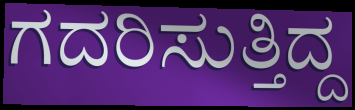
ಗದರಿಸುತ್ತಿದ್ದ